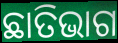
ଛାତିଭାଗ